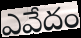
ఎవేదం